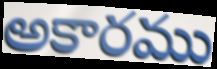
అకారము